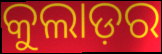
କୁଲାଡ଼ର